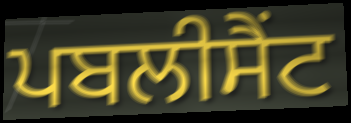
ਪਬਲੀਸੈਂਟ